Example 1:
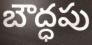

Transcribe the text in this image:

బౌద్ధపు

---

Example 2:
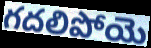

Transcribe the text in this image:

గదలిపోయె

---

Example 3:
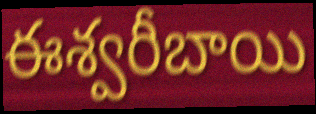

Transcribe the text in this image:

ఈశ్వరీబాయి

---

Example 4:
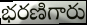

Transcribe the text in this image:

భరణిగారు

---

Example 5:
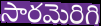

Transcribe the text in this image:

సారమెరిగి